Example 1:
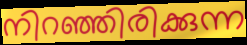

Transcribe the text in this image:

നിറഞ്ഞിരിക്കുന്ന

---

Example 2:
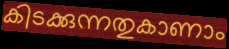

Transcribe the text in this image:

കിടക്കുന്നതുകാണാം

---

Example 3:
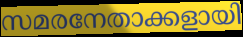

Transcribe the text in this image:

സമരനേതാക്കളായി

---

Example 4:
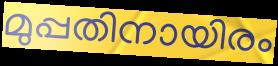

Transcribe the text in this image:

മുപ്പതിനായിരം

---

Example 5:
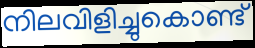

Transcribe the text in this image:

നിലവിളിച്ചുകൊണ്ട്